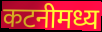
कटनीमध्य